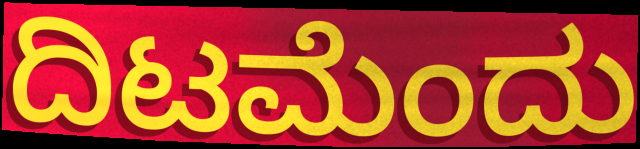
ದಿಟಮೆಂದು